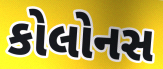
કોલોનસ